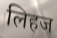
लिहज